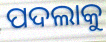
ପଦଲାକୁ